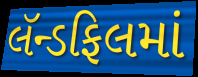
લૅન્ડફિલમાં